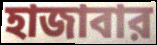
হাজাবার